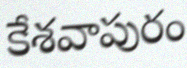
కేశవాపురం